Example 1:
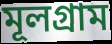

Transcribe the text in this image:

মূলগ্রাম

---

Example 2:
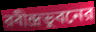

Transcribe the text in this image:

রবীন্দ্রভুবনের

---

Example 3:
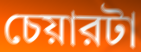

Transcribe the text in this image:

চেয়ারটা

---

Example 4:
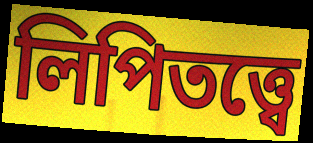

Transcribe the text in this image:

লিপিতত্ত্বে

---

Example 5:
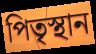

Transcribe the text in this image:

পিতৃস্থান